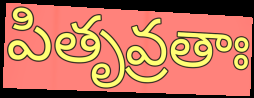
పితృవ్రతాః